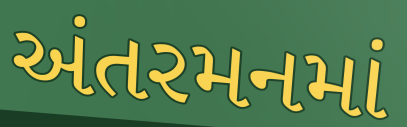
અંતરમનમાં